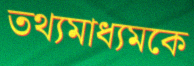
তথ্যমাধ্যমকে